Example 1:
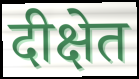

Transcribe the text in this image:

दीक्षेत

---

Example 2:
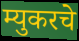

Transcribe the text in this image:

म्युकरचे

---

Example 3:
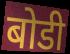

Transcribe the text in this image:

बोडी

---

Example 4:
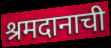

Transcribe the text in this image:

श्रमदानाची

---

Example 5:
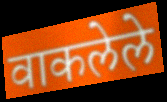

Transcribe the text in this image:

वाकलेले